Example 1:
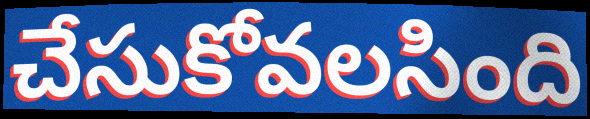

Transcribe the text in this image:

చేసుకోవలసింది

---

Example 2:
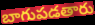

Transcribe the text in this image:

బాగుపడతారు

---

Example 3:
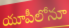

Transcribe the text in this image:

యూపీలోనూ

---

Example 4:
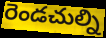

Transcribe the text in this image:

రెండచుల్ని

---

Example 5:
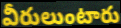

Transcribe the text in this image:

వీరులుంటారు